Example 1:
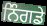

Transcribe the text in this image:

ਨਿੰਗਡੇ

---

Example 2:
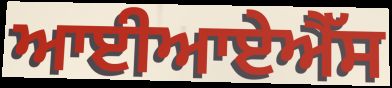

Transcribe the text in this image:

ਆਈਆਏਐੱਸ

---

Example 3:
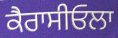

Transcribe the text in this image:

ਕੈਰਾਸੀਓਲਾ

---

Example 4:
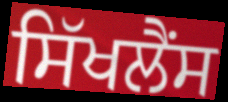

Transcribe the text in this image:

ਸਿੱਖਲੈਂਸ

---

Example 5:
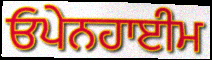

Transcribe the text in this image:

ਓਪੇਨਹਾਈਮ